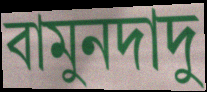
বামুনদাদু